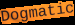
Dogmatic